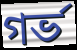
গৰ্ভ